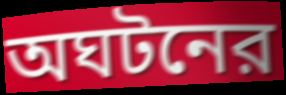
অঘটনের